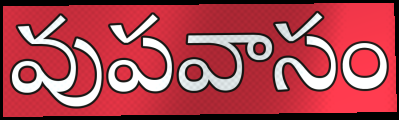
వుపవాసం